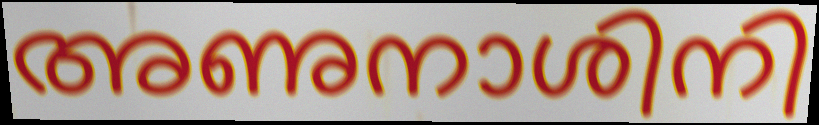
അണുനാശിനി